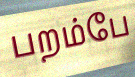
பறம்பே